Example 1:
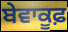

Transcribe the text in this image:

ਬੇਵਾਕੂਫ਼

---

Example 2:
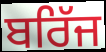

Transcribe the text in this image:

ਬਰਿੱਜ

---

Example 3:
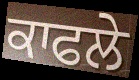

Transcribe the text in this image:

ਕਾਫਲੇ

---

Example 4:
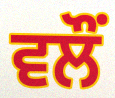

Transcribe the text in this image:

ਵਲੌੰ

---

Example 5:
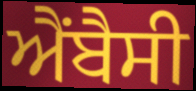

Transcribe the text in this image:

ਐਂਬੈਸੀ